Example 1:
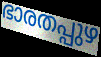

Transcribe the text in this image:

ഭാരതപ്പുഴ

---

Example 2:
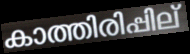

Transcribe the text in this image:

കാത്തിരിപ്പില്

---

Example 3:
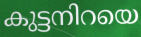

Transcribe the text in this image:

കുട്ടനിറയെ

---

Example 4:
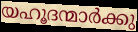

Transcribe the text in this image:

യഹൂദന്മാർക്കു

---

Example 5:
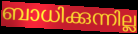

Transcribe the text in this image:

ബാധിക്കുന്നില്ല